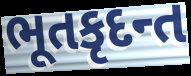
ભૂતકૃદન્ત